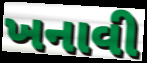
ખનાવી